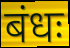
बंधः